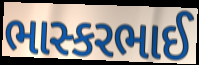
ભાસ્કરભાઈ